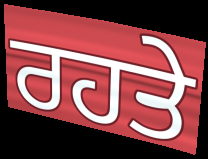
ਰਹਤੇ